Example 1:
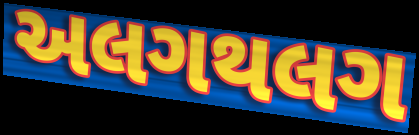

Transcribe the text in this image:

અલગથલગ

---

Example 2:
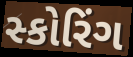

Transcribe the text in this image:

સ્કોરિંગ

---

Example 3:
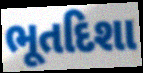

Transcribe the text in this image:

ભૂતદિશા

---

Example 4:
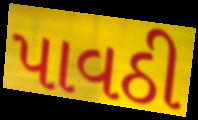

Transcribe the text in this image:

પાવઠી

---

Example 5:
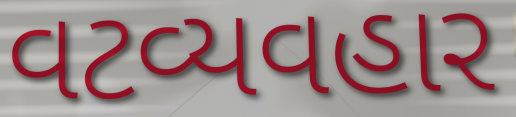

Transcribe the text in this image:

વટવ્યવહાર